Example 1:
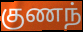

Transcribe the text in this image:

குணந்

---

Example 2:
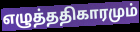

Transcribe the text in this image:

எழுத்ததிகாரமும்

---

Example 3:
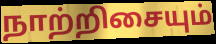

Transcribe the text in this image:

நாற்றிசையும்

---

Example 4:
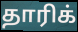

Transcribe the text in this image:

தாரிக்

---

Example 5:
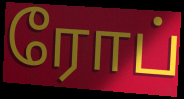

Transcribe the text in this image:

ரோப்